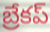
బ్రేకప్